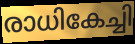
രാധികേച്ചി